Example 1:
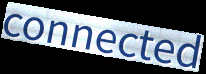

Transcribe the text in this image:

connected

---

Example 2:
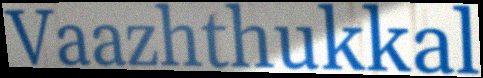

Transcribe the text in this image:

Vaazhthukkal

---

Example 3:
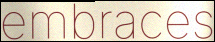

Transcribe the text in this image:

embraces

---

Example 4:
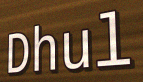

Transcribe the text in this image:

Dhul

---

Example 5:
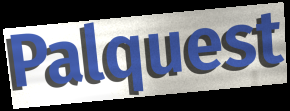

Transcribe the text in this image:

Palquest